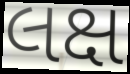
લક્ષ